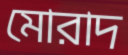
মোরাদ